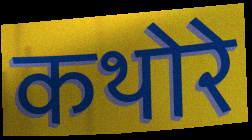
कथोरे